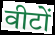
वीटों